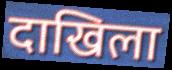
दाखिला